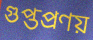
গুপ্তপ্রণয়